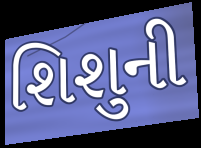
શિશુની